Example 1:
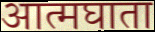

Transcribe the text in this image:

आत्मघाता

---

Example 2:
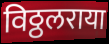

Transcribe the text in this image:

विठ्ठलराया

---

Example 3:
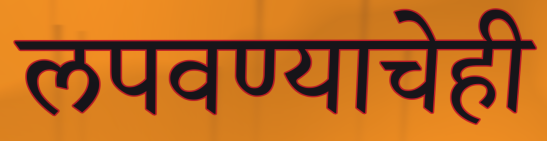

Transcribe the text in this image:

लपवण्याचेही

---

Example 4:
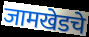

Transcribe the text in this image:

जामखेडचे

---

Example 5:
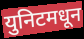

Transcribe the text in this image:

युनिटमधून